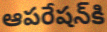
ఆపరేషన్‌కి